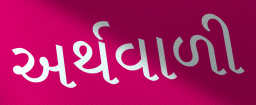
અર્થવાળી